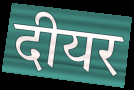
दीयर